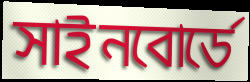
সাইনবোর্ডে